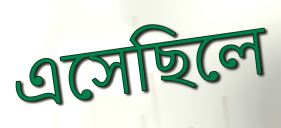
এসেছিলে